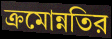
ক্রমোন্নতির